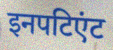
इनपटिएंट